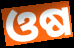
ଓଷ